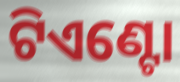
ଟିଏଣ୍ଟୋ